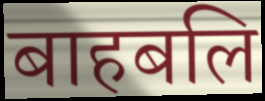
बाहबलि